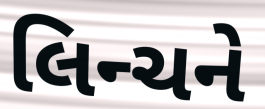
લિન્ચને